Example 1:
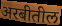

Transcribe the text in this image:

अरबीतील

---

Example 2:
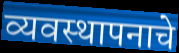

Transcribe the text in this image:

व्यवस्थापनाचे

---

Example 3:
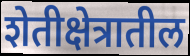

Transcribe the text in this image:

शेतीक्षेत्रातील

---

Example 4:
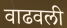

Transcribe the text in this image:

वाढवली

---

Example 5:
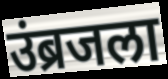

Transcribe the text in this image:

उंब्रजला